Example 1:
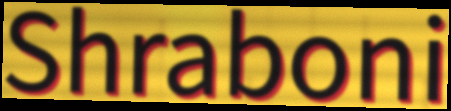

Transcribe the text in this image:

Shraboni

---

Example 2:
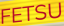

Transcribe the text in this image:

FETSU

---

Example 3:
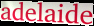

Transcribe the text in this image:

adelaide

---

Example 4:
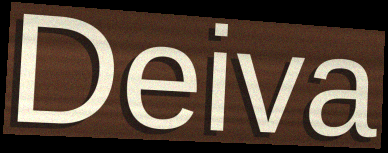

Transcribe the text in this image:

Deiva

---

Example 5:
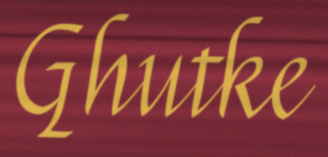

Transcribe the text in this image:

Ghutke